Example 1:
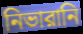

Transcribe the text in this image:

নিভারানি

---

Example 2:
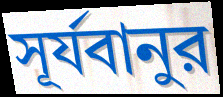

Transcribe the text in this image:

সূর্যবানুর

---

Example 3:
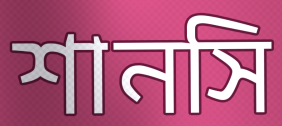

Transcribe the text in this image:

শানসি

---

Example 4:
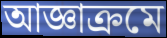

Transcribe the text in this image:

আজ্ঞাক্রমে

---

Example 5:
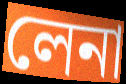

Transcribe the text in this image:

লেনা